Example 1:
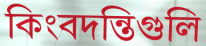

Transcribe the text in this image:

কিংবদন্তিগুলি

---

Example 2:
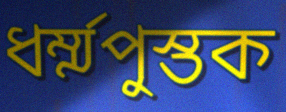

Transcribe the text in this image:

ধর্ম্মপুস্তক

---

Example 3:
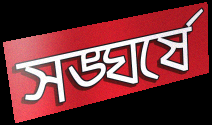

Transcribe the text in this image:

সঙ্ঘর্ষে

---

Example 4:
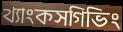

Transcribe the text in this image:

থ্যাংকসগিভিং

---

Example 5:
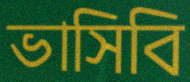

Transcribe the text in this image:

ভাসিবি